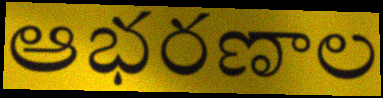
ఆభరణాల